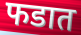
फडात